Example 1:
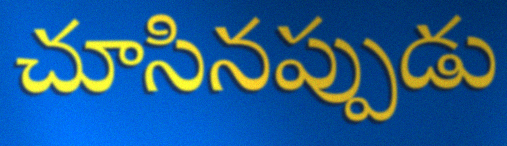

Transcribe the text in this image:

చూసినప్పుడు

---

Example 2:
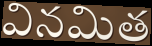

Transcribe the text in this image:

వినమిత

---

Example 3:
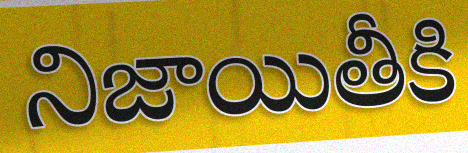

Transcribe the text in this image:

నిజాయితీకి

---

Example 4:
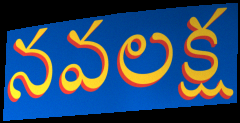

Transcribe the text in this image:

నవలక్ష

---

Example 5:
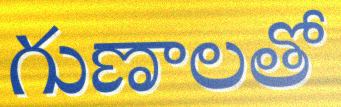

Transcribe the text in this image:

గుణాలతో